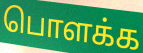
பொளக்க